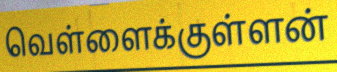
வெள்ளைக்குள்ளன்